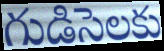
గుడిసెలకు